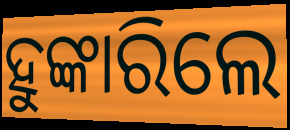
ହୁଙ୍କାରିଲେ